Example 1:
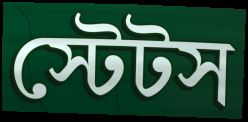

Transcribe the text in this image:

স্টেটস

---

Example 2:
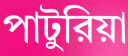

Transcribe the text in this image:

পাটুরিয়া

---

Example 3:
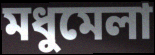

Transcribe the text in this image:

মধুমেলা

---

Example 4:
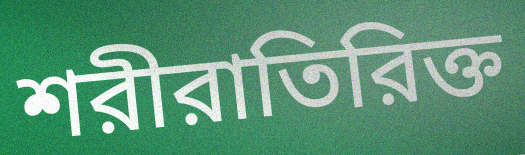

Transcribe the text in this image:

শরীরাতিরিক্ত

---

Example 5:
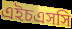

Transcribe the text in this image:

এইচএসসি